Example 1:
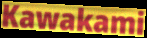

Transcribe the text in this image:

Kawakami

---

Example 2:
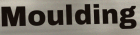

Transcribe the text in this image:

Moulding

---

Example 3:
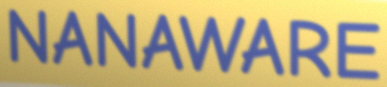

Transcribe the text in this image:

NANAWARE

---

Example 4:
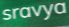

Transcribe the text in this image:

sravya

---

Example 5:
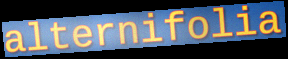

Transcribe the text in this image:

alternifolia